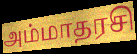
அம்மாதரசி